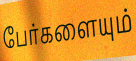
பேர்களையும்